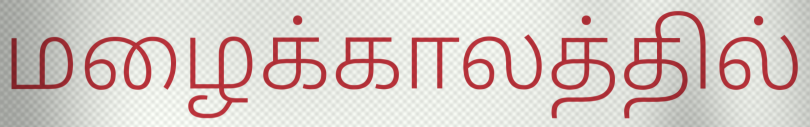
மழைக்காலத்தில்